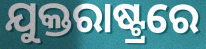
ଯୁକ୍ତରାଷ୍ଟ୍ରରେ